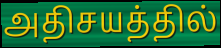
அதிசயத்தில்